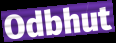
Odbhut